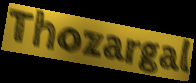
Thozargal